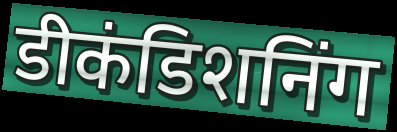
डीकंडिशनिंग